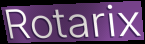
Rotarix